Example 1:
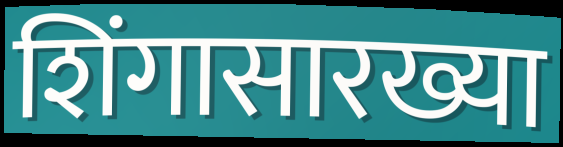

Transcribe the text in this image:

शिंगासारख्या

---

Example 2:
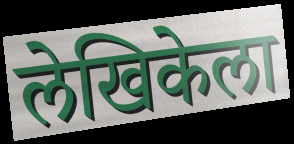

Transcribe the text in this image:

लेखिकेला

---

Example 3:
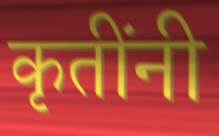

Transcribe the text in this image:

कृतींनी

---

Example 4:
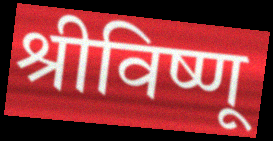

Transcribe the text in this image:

श्रीविष्णू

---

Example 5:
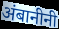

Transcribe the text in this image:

अंबानीनी